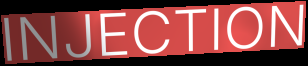
INJECTION